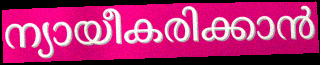
ന്യായീകരിക്കാൻ